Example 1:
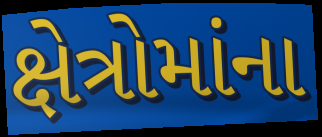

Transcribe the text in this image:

ક્ષેત્રોમાંના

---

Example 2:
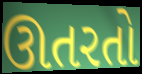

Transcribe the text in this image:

ઊતરતો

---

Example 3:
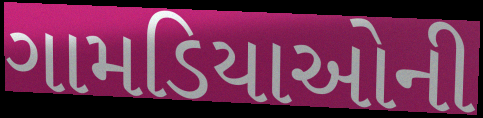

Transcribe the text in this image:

ગામડિયાઓની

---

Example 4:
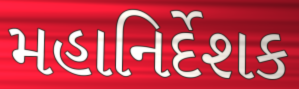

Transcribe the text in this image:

મહાનિર્દેશક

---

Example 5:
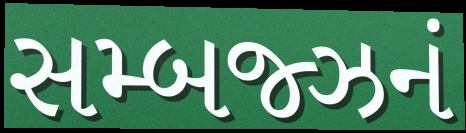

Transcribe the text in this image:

સમ્બજ્ઝનં